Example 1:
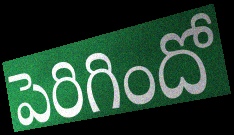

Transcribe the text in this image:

పెరిగిందో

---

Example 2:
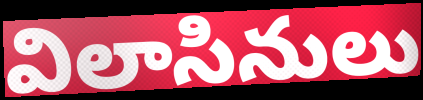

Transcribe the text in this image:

విలాసినులు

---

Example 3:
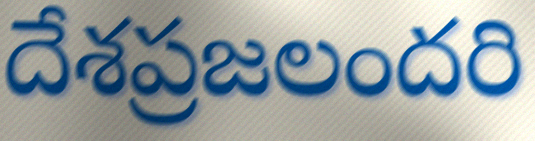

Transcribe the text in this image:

దేశప్రజలందరి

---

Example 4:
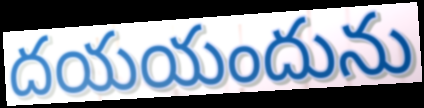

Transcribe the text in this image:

దయయందును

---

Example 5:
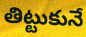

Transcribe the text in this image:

తిట్టుకునే